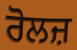
ਰੋਲਜ਼